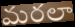
మరలా